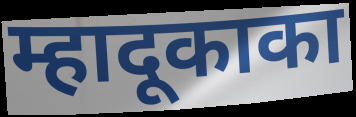
म्हादूकाका